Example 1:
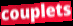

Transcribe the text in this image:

couplets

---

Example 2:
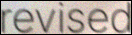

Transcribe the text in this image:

revised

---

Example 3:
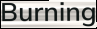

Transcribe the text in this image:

Burning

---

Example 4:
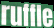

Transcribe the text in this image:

ruffle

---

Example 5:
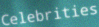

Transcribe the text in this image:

Celebrities